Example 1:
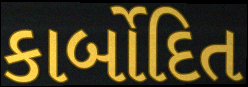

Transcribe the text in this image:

કાર્બોદિત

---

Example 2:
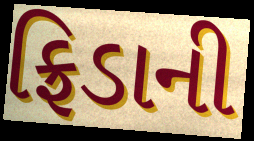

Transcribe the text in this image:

ફ્રિડાની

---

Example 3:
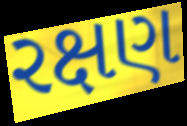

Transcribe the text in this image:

રક્ષણ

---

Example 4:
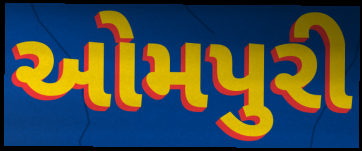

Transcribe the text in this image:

ઓમપુરી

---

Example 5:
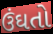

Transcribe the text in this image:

ઉંઘતો